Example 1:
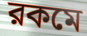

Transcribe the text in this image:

রকমে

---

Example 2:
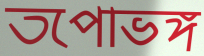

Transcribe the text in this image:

তপোভঙ্গ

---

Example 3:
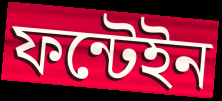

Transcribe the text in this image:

ফন্টেইন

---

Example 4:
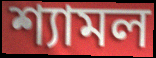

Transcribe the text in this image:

শ্যামল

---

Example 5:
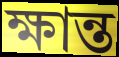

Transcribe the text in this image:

ক্ষান্ত